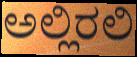
ಅಲ್ಲಿರಲಿ